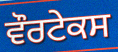
ਵੌਰਟੇਕਸ